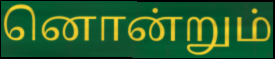
னொன்றும்